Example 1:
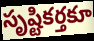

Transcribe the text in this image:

సృష్టికర్తకూ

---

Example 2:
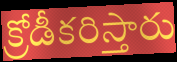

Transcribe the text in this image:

క్రోడీకరిస్తారు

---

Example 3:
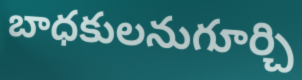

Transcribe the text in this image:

బాధకులనుగూర్చి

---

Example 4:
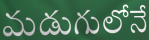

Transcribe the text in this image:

మడుగులోనే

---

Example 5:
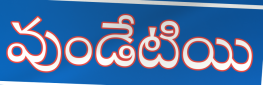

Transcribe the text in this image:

వుండేటియి